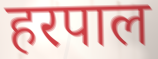
हरपाल